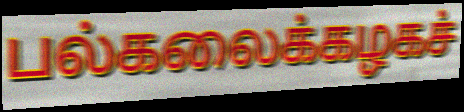
பல்கலைக்கழகச்